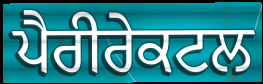
ਪੈਰੀਰੇਕਟਲ